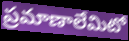
ప్రమాణాలేమిటో